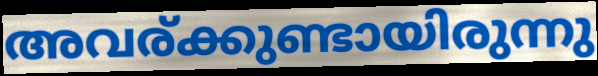
അവര്ക്കുണ്ടായിരുന്നു